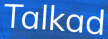
Talkad